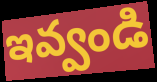
ఇవ్వండి